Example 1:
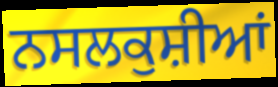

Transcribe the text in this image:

ਨਸਲਕੁਸ਼ੀਆਂ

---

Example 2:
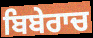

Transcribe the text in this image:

ਬਿਬੇਰਾਚ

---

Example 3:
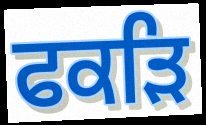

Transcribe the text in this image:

ਫਕੜਿ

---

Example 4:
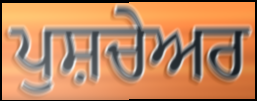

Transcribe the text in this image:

ਪੁਸ਼ਚੇਅਰ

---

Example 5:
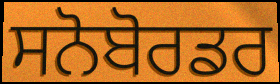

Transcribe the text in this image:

ਸਨੋਬੋਰਡਰ